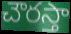
చౌరస్తా